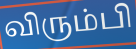
விரும்பி